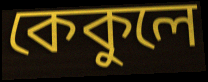
কেকুলে